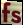
fs